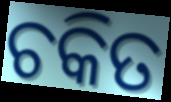
ଚକିତ